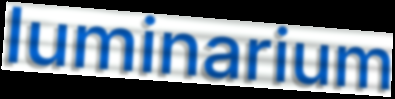
luminarium